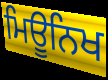
ਮਿਊਨਿਖ